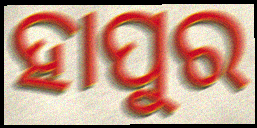
ହାପୁର